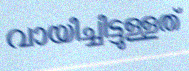
വായിച്ചിട്ടുള്ളത്